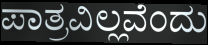
ಪಾತ್ರವಿಲ್ಲವೆಂದು